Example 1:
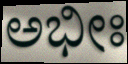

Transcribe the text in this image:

ಅಭೀಃ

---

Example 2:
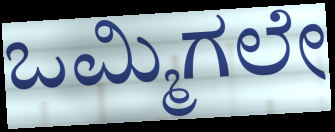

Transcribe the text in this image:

ಒಮ್ಮಿಗಲೇ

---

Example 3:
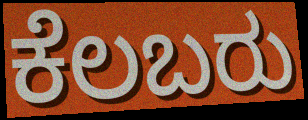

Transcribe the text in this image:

ಕೆಲಬರು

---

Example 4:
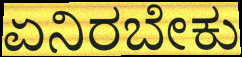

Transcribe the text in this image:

ಏನಿರಬೇಕು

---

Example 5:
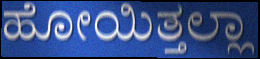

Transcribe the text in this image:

ಹೋಯಿತ್ತಲ್ಲಾ